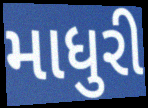
માધુરી